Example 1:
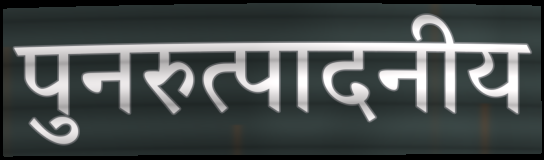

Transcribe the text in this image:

पुनरुत्पादनीय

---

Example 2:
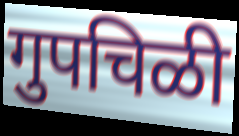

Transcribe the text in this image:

गुपचिळी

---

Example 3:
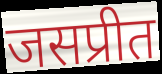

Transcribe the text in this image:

जसप्रीत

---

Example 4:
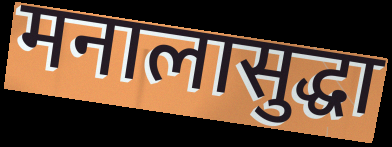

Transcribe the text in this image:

मनालासुद्धा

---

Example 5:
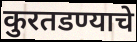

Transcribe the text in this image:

कुरतडण्याचे